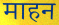
माहन